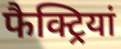
फैक्ट्रियां